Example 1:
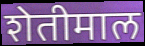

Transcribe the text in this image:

शेतीमाल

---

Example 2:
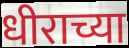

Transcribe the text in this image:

धीराच्या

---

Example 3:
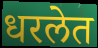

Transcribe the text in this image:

धरलेत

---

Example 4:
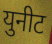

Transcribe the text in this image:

युनीट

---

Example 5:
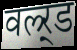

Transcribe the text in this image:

वल्र्ड